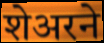
शेअरने